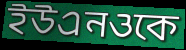
ইউএনওকে